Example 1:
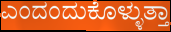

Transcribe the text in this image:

ಎಂದಂದುಕೊಳ್ಳುತ್ತಾ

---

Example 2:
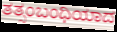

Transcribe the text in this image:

ತತ್ಸಂಬಂಧಿಯಾದ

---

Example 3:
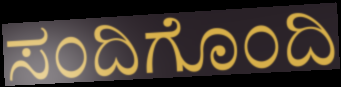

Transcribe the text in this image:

ಸಂದಿಗೊಂದಿ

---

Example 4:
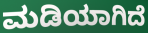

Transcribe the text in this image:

ಮಡಿಯಾಗಿದೆ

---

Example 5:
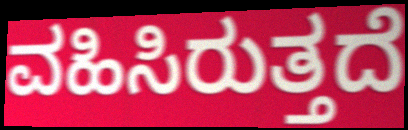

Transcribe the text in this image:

ವಹಿಸಿರುತ್ತದೆ